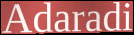
Adaradi